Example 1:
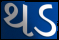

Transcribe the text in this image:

થડ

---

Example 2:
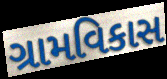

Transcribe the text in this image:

ગ્રામવિકાસ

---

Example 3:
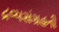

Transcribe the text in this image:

દ્રવ્યસંગ્રહની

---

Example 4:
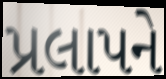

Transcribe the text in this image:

પ્રલાપને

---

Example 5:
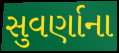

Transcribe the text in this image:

સુવર્ણાના